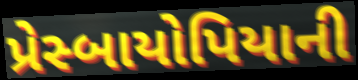
પ્રેસ્બાયોપિયાની